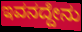
ಇವನದ್ದೇನು